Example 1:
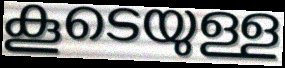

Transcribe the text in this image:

കൂടെയുള്ള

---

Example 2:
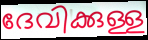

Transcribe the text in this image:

ദേവിക്കുള്ള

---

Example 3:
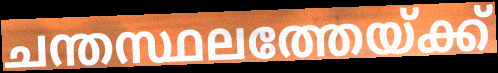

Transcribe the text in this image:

ചന്തസ്ഥലത്തേയ്ക്ക്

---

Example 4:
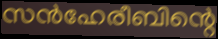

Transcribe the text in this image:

സൻഹേരീബിന്റെ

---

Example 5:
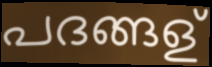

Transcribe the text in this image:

പദങ്ങള്